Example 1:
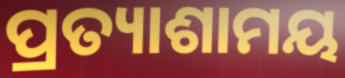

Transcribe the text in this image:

ପ୍ରତ୍ୟାଶାମୟ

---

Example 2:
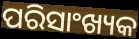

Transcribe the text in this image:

ପରିସାଂଖ୍ୟକ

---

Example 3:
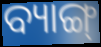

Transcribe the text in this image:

ବ୍ୟାଙ୍ଗ୍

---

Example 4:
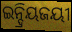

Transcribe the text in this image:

ଇନ୍ଦ୍ରିୟଜୟୀ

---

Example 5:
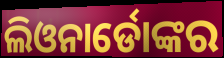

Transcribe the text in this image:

ଲିଓନାର୍ଡୋଙ୍କର